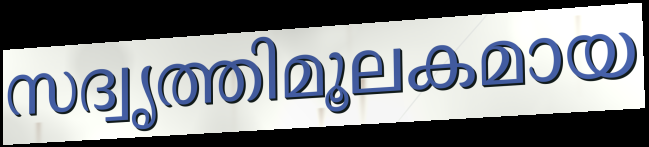
സദ്വൃത്തിമൂലകമായ